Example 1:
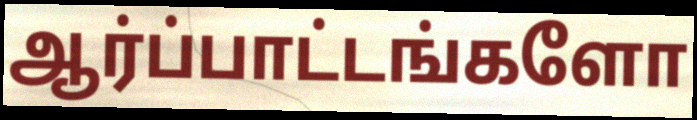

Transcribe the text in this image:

ஆர்ப்பாட்டங்களோ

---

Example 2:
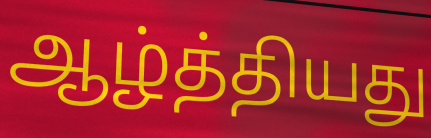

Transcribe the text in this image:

ஆழ்த்தியது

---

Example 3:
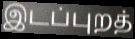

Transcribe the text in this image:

இடப்புறத்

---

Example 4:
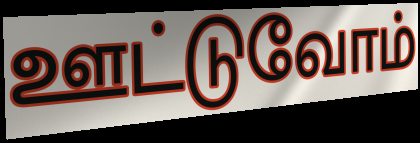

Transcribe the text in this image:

ஊட்டுவோம்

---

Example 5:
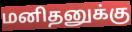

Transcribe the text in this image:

மனிதனுக்கு